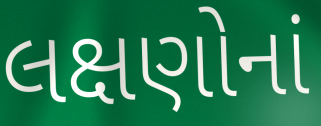
લક્ષણોનાં